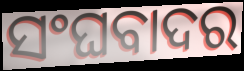
ସଂଘବାଦର